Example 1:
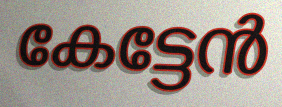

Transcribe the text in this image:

കേട്ടേൻ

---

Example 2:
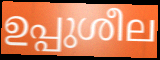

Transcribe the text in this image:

ഉപ്പുശീല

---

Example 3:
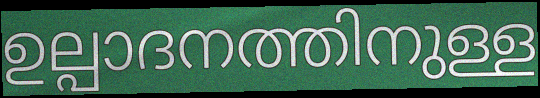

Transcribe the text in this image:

ഉല്പാദനത്തിനുള്ള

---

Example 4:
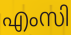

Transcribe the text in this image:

എംസി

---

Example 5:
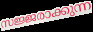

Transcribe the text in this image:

സജ്ജരാക്കുന്ന